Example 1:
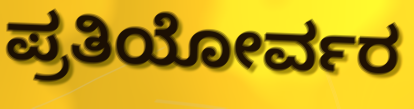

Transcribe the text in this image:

ಪ್ರತಿಯೋರ್ವರ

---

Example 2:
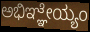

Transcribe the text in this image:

ಅಭಿಞ್ಞೇಯ್ಯಂ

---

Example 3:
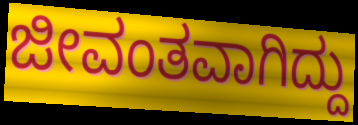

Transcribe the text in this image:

ಜೀವಂತವಾಗಿದ್ದು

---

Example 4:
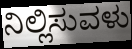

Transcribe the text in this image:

ನಿಲ್ಲಿಸುವಳು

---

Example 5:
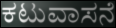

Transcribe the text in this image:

ಕಟುವಾಸನೆ